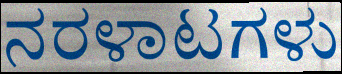
ನರಳಾಟಗಳು